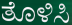
ತೊಳಿಸಿ